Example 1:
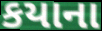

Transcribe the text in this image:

કયાના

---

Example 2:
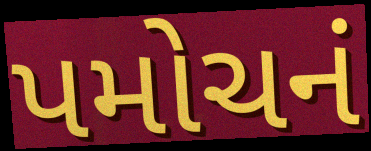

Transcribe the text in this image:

પમોચનં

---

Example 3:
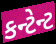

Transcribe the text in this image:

કન્ટેન્ટ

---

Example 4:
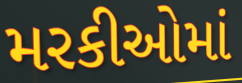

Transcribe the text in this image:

મરકીઓમાં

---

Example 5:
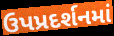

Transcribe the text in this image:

ઉપપ્રદર્શનમાં